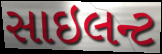
સાઇલન્ટ